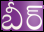
బీర్